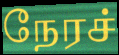
நேரச்